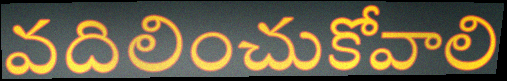
వదిలించుకోవాలి